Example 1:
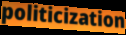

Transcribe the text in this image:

politicization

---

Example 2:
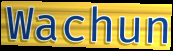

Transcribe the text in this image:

Wachun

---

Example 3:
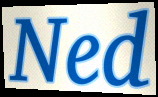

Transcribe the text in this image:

Ned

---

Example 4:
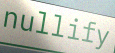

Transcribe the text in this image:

nullify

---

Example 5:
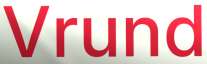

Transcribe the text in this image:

Vrund